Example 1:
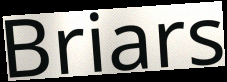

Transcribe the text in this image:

Briars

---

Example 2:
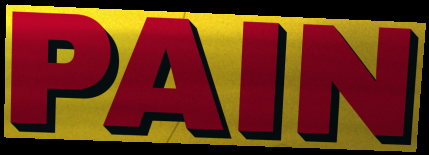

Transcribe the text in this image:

PAIN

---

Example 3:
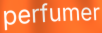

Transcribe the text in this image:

perfumer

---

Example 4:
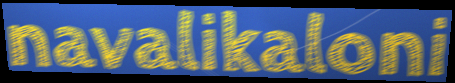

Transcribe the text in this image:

navalikaloni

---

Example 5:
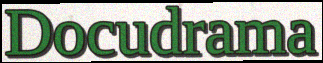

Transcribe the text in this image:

Docudrama